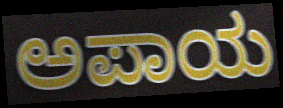
ಅಪಾಯ